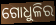
ଗୋଧୁଳିର